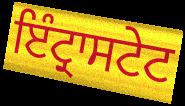
ਇੰਟ੍ਰਾਸਟੇਟ